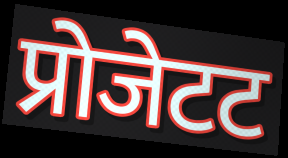
प्रोजेटट